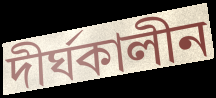
দীৰ্ঘকালীন